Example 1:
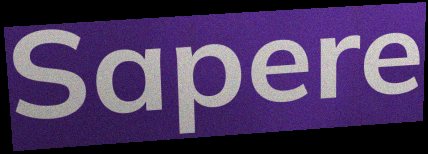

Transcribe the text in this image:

Sapere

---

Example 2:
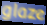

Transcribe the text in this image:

glaze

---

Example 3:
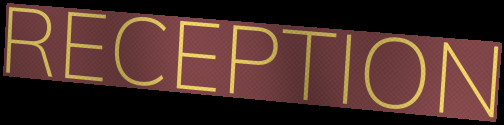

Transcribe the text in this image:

RECEPTION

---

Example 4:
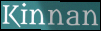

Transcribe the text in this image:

Kinnan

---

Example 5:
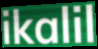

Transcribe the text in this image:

ikalil